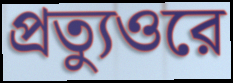
প্রত্যুওরে